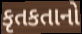
કૃતકતાનો